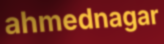
ahmednagar